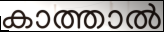
കാത്താൽ